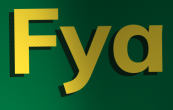
Fya